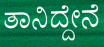
ತಾನಿದ್ದೇನೆ